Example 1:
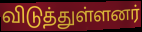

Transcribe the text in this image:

விடுத்துள்ளனர்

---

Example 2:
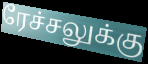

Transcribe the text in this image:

ரேச்சலுக்கு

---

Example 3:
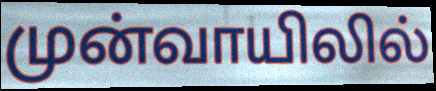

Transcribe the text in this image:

முன்வாயிலில்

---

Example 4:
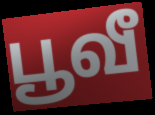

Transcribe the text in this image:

பூவீ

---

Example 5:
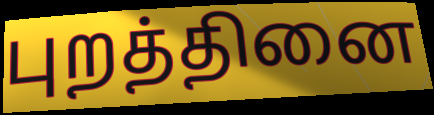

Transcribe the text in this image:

புறத்தினை